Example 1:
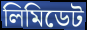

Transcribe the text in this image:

লিমিডেট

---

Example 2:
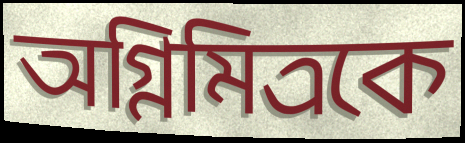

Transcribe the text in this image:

অগ্নিমিত্রকে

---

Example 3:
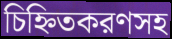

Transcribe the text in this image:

চিহ্নিতকরণসহ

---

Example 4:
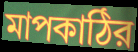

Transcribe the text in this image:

মাপকাঠির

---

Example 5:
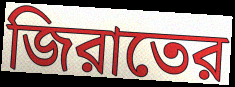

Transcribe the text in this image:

জিরাতের